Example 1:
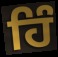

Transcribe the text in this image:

ਹਿੰ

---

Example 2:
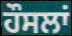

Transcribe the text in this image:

ਹੌਸਲਾਂ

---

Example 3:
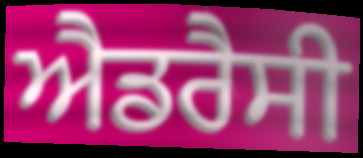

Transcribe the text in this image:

ਐਡਰੈਸੀ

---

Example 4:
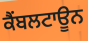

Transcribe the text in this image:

ਕੈਂਬਲਟਾਊਨ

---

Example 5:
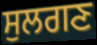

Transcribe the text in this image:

ਸੁਲਗਣ